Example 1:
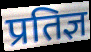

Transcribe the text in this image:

प्रतिज्ञ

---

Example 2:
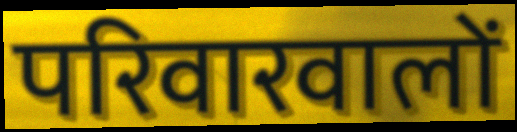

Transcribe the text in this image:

परिवारवालों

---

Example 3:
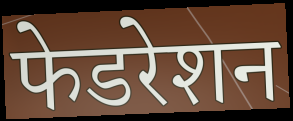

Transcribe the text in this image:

फेडरेशन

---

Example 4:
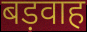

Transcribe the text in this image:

बड़वाह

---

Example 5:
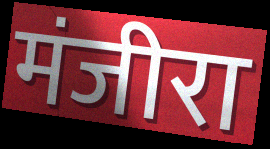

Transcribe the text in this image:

मंजीरा